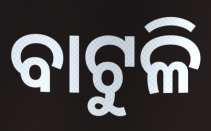
ବାଟୁଳି